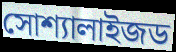
সোশ্যালাইজড